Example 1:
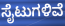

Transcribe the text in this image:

ಸೈಟುಗಳಿವೆ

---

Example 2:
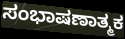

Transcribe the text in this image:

ಸಂಭಾಷಣಾತ್ಮಕ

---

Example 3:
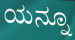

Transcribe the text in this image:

ಯನ್ನೂ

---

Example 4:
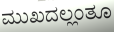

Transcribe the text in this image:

ಮುಖದಲ್ಲಂತೂ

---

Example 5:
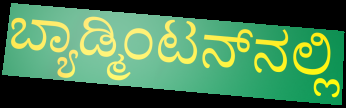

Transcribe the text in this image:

ಬ್ಯಾಡ್ಮಿಂಟನ್‌ನಲ್ಲಿ